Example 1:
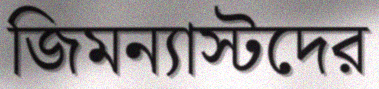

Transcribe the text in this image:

জিমন্যাস্টদের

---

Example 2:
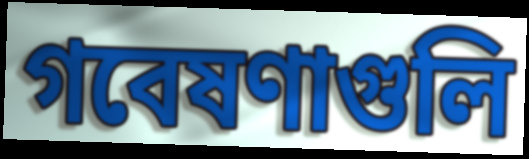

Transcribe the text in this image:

গবেষণাগুলি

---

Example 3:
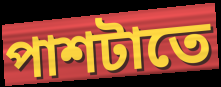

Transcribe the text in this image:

পাশটাতে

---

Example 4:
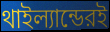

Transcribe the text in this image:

থাইল্যান্ডেরই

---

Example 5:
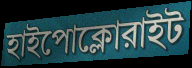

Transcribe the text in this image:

হাইপোক্লোরাইট